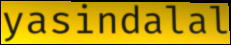
yasindalal